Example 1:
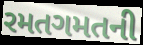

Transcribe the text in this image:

રમતગમતની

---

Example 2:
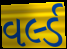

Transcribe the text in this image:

વર્લ્ડ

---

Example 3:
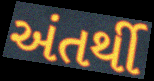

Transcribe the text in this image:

અંતર્થી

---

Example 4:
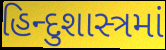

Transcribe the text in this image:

હિન્દુશાસ્ત્રમાં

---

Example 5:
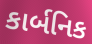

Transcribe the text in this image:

કાર્બનિક